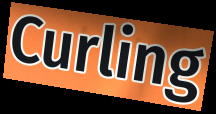
Curling